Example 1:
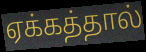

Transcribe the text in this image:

ஏக்கத்தால்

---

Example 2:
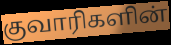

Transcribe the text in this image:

குவாரிகளின்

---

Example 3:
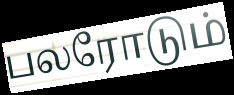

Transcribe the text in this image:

பலரோடும்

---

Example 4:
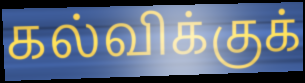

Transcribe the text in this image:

கல்விக்குக்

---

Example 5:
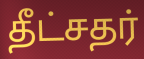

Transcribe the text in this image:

தீட்சதர்